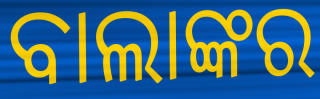
ବାଲାଙ୍କର